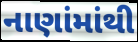
નાણાંમાંથી